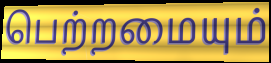
பெற்றமையும்